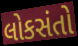
લોકસંતો